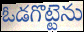
ఓడగొట్టెను